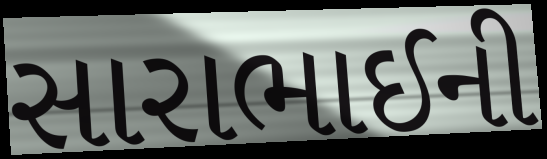
સારાભાઈની